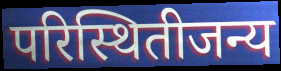
परिस्थितीजन्य